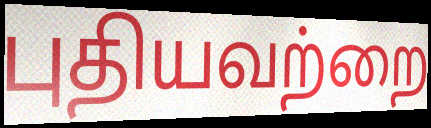
புதியவற்றை